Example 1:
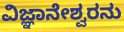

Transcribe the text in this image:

ವಿಜ್ಞಾನೇಶ್ವರನು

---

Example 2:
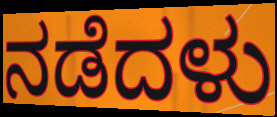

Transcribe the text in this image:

ನಡೆದಳು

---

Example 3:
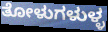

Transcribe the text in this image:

ತೋಳುಗಳುಳ್ಳ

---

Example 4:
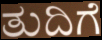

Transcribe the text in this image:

ತುದಿಗೆ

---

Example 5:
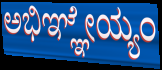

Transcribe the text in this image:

ಅಭಿಞ್ಞೇಯ್ಯಂ